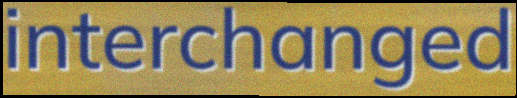
interchanged